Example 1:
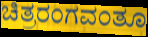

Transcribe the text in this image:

ಚಿತ್ರರಂಗವಂತೂ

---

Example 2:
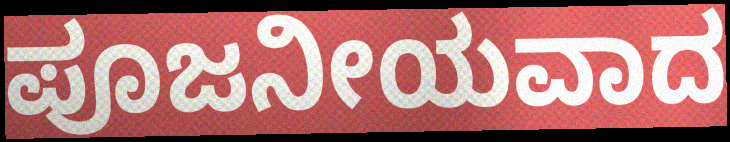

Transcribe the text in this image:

ಪೂಜನೀಯವಾದ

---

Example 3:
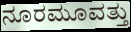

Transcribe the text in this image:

ನೂರಮೂವತ್ತು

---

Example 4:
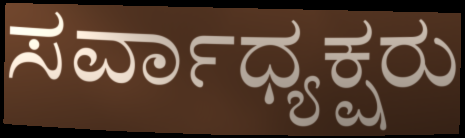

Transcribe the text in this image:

ಸರ್ವಾಧ್ಯಕ್ಷರು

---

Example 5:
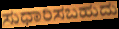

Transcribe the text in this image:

ಸುಧಾರಿಸಬಹುದು